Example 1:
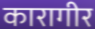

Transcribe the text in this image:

कारागीर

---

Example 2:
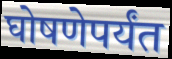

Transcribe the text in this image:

घोषणेपर्यंत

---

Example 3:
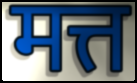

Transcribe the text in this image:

मत्त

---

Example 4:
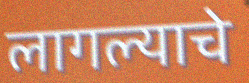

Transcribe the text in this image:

लागल्याचे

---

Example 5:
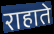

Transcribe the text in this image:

राहाते